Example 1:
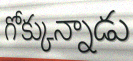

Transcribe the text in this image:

గోక్కున్నాడు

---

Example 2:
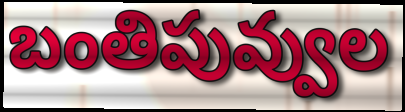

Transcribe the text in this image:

బంతిపువ్వుల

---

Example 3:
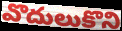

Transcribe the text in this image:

వొదులుకొని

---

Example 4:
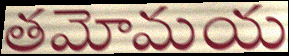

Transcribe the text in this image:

తమోమయ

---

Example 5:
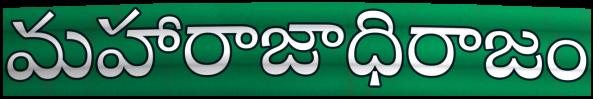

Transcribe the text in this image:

మహారాజాధిరాజం